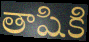
తాషికి